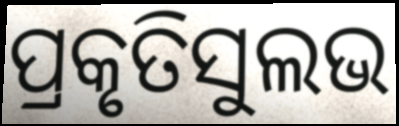
ପ୍ରକୃତିସୁଲଭ